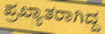
ಪ್ರಖ್ಯಾತರಾಗಿದ್ದ